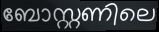
ബോസ്റ്റണിലെ